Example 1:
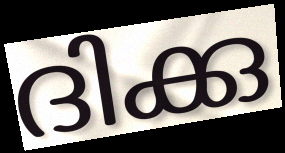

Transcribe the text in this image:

ദിക്കു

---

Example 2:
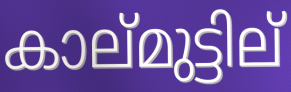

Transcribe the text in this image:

കാല്മുട്ടില്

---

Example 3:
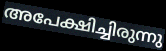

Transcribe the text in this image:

അപേക്ഷിച്ചിരുന്നു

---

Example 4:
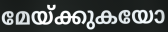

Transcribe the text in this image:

മേയ്ക്കുകയോ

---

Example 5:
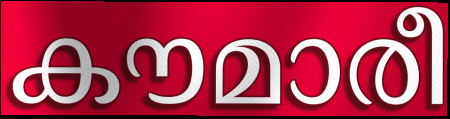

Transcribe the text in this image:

കൗമാരീ